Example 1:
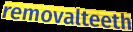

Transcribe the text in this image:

removalteeth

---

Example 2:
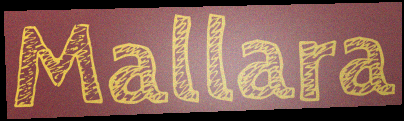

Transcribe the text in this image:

Mallara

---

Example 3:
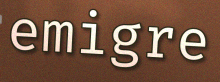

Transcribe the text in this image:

emigre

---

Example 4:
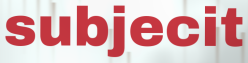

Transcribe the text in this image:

subjecit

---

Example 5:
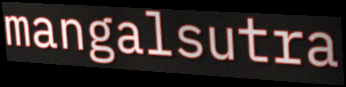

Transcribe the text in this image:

mangalsutra